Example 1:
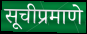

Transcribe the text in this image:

सूचीप्रमाणे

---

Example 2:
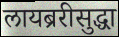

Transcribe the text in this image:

लायब्ररीसुद्धा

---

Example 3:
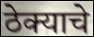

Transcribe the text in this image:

ठेक्याचे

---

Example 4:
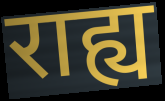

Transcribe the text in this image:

राह्य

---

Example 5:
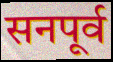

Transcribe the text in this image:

सनपूर्व